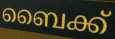
ബൈക്ക്